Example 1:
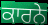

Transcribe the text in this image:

ਕਾਰਨੇ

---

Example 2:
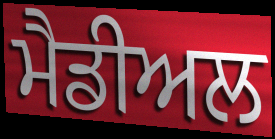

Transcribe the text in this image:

ਮੈਡੀਅਲ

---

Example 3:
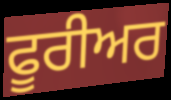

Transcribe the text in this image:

ਫੂਰੀਅਰ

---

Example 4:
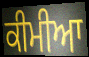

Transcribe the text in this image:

ਕੀਮੀਆ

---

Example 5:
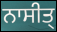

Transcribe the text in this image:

ਨਾਸੀਤ੍